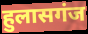
हुलासगंज